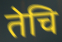
तेचि